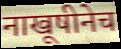
नाखूषीनेच